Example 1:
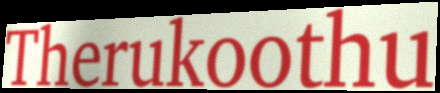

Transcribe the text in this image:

Therukoothu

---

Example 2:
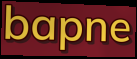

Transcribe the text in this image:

bapne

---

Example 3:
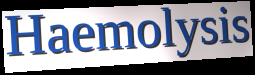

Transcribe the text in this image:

Haemolysis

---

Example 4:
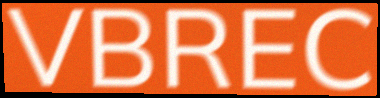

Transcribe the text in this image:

VBREC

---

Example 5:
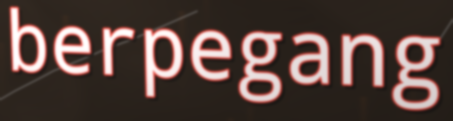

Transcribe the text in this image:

berpegang